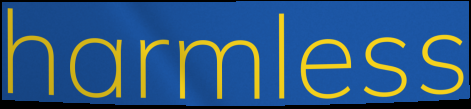
harmless